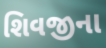
શિવજીના